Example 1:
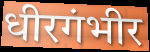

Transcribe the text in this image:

धीरगंभीर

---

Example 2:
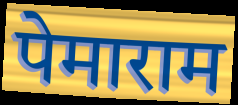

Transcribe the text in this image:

पेमाराम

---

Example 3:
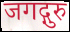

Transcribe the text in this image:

जगद्गुरु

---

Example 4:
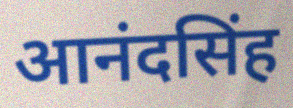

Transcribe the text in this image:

आनंदसिंह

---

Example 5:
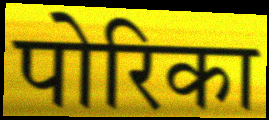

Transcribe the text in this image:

पोरिका